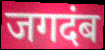
जगदंब